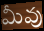
మీవు